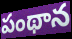
పంథాన